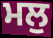
ਮਲੁ